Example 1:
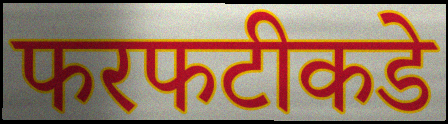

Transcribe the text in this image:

फरफटीकडे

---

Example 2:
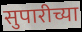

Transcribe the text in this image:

सुपारीच्या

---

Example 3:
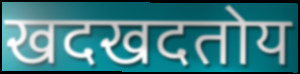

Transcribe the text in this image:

खदखदतोय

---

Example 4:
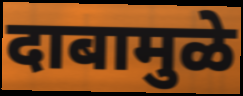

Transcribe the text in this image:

दाबामुळे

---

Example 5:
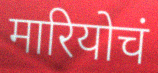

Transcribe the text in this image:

मारियोचं